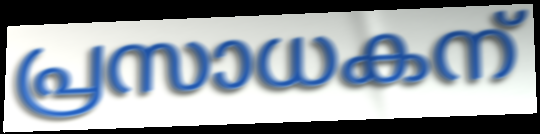
പ്രസാധകന്